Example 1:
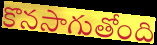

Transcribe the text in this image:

కొనసాగుతోంది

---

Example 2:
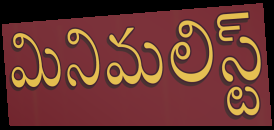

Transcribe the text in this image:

మినిమలిస్ట్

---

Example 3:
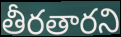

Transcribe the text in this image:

తీరతారని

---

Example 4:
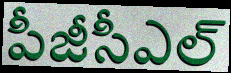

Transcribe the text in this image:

పీజీసీఎల్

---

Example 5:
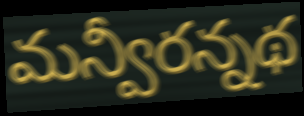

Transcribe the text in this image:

మన్వీరన్నథ